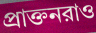
প্রাক্তনরাও